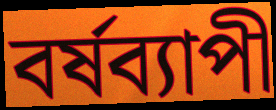
বর্ষব্যাপী